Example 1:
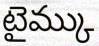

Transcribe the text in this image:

టైమ్కు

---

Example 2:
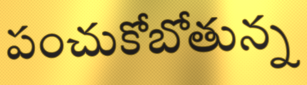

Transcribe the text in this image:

పంచుకోబోతున్న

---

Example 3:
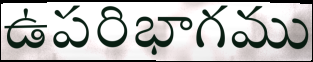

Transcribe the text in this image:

ఉపరిభాగము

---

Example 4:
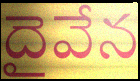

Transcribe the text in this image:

దైవేన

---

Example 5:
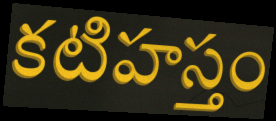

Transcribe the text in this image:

కటిహస్తం